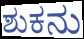
ಶುಕನು